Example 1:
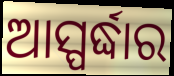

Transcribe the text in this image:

ଆସ୍ପର୍ଦ୍ଧାର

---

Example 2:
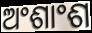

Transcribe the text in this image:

ଅଂଶାଂଶ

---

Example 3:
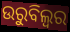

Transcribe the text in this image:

ଉରୁବିଲ୍ଵର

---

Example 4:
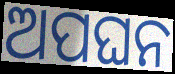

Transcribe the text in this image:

ଅପଘନ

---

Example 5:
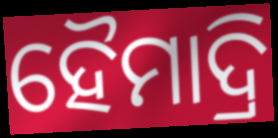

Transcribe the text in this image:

ହୈମାଦ୍ରି